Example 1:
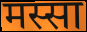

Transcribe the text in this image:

मस्‍सा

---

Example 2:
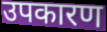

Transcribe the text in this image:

उपकारण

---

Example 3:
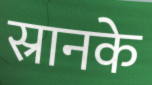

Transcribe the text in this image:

स्रानके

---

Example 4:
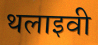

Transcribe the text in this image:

थलाइवी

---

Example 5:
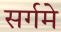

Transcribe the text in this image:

सर्गमे